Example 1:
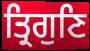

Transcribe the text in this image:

ਤ੍ਰਿਗੁਣਿ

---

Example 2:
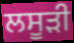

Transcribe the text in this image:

ਲਸੂੜੀ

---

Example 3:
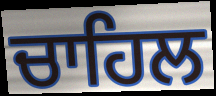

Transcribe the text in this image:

ਚਾਹਿਲ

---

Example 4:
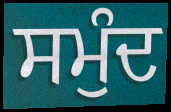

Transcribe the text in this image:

ਸਮੁੰਦ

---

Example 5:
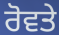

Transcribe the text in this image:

ਰੋਵਤੇ